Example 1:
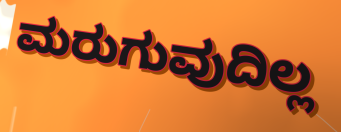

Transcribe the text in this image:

ಮರುಗುವುದಿಲ್ಲ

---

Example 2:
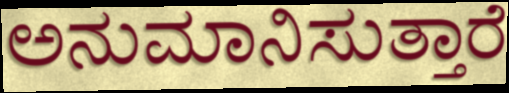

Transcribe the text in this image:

ಅನುಮಾನಿಸುತ್ತಾರೆ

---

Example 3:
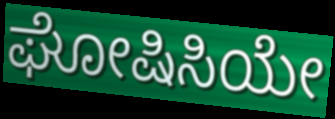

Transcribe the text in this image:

ಘೋಷಿಸಿಯೇ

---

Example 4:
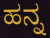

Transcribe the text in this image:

ಹನ್ನ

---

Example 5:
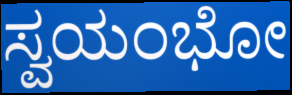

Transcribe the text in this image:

ಸ್ವಯಂಭೋ